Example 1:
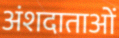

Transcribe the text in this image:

अंशदाताओं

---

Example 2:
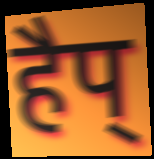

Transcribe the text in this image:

हैप्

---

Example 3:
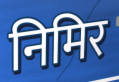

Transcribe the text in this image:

निमिर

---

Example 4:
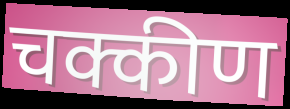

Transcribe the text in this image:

चक्कीण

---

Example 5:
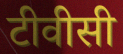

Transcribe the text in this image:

टीवीसी